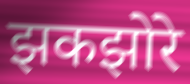
झकझोरे